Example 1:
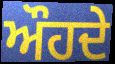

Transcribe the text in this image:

ਔਹਦੇ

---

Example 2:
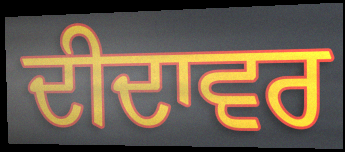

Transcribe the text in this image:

ਦੀਦਾਵਰ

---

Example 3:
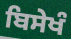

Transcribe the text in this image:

ਬਿਸੇਖੰ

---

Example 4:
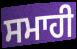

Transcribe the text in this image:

ਸਮਾਹੀ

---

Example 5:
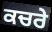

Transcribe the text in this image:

ਕਚਰੇ